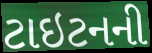
ટાઇટનની